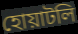
হোয়াটলি